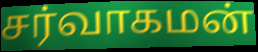
சர்வாகமன்